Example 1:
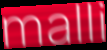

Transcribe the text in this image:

malli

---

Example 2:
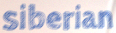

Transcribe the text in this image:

siberian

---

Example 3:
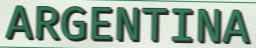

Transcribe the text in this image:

ARGENTINA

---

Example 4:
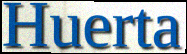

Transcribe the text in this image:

Huerta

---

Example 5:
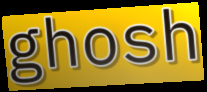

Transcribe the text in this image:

ghosh